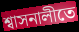
শ্বাসনালীতে